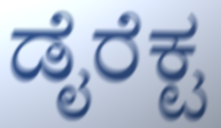
ಡೈರೆಕ್ಟ